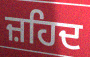
ਜ਼ਹਿਦ